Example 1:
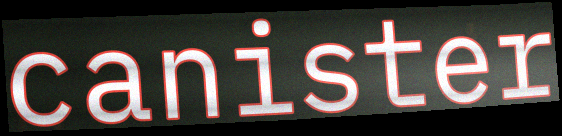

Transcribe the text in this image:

canister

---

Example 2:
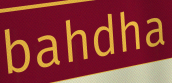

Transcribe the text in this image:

bahdha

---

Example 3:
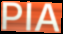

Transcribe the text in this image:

PIA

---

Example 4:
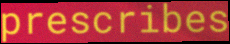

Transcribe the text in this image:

prescribes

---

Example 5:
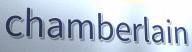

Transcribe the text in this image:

chamberlain